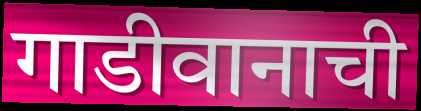
गाडीवानाची